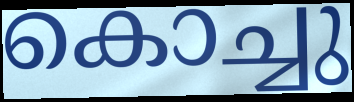
കൊച്ചു